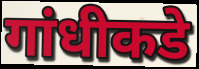
गांधीकडे